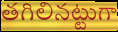
తగిలినట్టుగా